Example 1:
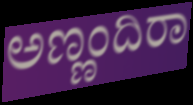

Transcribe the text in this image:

ಅಣ್ಣಂದಿರಾ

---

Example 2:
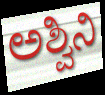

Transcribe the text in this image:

ಅಶ್ವಿನಿ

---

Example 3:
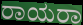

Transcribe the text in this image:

ರಾಯರಾ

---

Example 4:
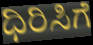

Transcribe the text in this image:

ಧಿರಿಸಿಗೆ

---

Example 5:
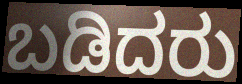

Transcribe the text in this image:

ಬಡಿದರು